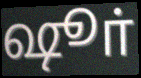
ஷூர்